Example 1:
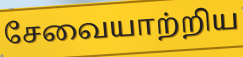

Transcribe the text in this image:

சேவையாற்றிய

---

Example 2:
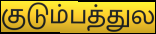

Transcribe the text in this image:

குடும்பத்துல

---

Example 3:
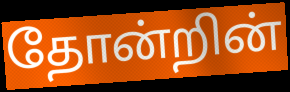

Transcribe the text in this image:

தோன்றின்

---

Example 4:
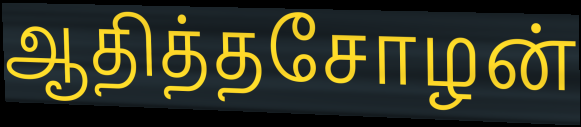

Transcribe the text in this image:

ஆதித்தசோழன்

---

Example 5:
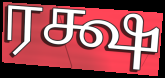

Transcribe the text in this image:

ரக்ஷ